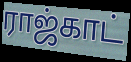
ராஜ்காட்